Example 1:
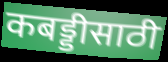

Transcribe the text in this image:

कबड्डीसाठी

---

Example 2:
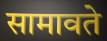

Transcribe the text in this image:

सामावते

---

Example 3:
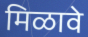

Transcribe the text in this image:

मिळावे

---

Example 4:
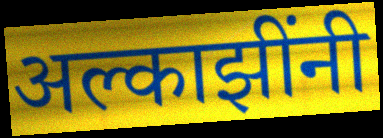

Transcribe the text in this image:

अल्काझींनी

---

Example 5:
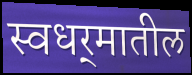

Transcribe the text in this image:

स्वधर्मातील